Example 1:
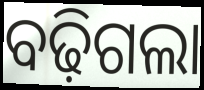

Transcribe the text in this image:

ବଢ଼ିଗଲା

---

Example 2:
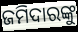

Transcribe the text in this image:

ଜମିଦାରଙ୍କୁ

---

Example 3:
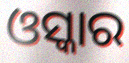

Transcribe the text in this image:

ଓସ୍କାର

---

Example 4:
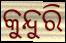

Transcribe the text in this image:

କୁନ୍ଦୁରି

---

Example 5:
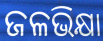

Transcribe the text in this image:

ଜଳଭିକ୍ଷା